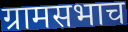
ग्रामसभाच